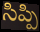
సిప్పి